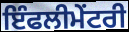
ਇੰਫਲੀਮੇਂਟਰੀ